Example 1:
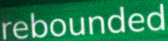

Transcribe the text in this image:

rebounded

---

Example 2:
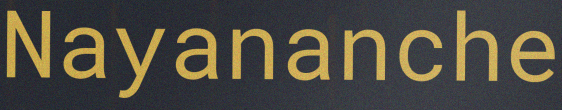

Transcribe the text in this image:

Nayananche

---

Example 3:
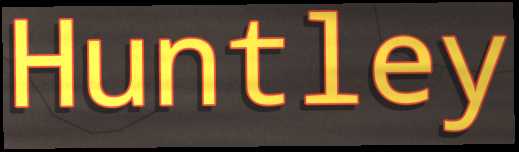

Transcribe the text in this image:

Huntley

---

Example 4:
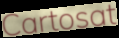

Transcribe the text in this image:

Cartosat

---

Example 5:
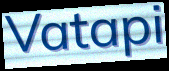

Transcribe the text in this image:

Vatapi